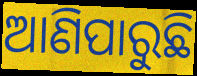
ଆଣିପାରୁଛି